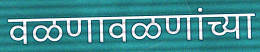
वळणावळणांच्या